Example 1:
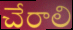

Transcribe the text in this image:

చేరాలి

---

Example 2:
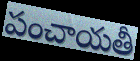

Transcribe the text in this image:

పంచాయతీ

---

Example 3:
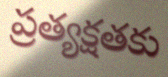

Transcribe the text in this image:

ప్రత్యక్షతకు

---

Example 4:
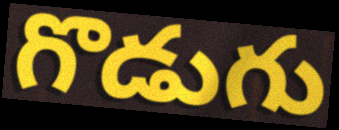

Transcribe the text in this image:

గొడుగు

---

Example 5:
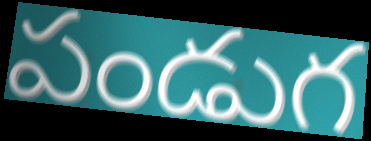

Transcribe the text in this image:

పండుగ